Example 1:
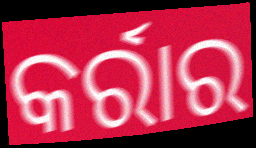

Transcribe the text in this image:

କର୍ରାର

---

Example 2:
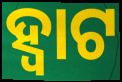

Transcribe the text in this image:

ହ୍ଵାଟ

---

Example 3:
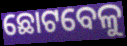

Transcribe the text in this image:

ଛୋଟବେଳୁ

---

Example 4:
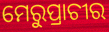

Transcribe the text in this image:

ମେରୁପ୍ରାଚୀର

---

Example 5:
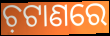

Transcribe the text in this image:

ଚ଼ଟାଣରେ